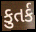
કુતર્ક